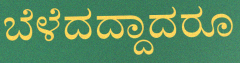
ಬೆಳೆದದ್ದಾದರೂ